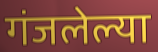
गंजलेल्या